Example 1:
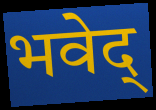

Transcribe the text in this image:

भवेद्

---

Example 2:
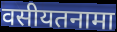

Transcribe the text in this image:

वसीयतनामा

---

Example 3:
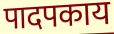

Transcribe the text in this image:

पादपकाय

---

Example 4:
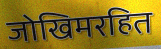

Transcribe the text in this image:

जोखिमरहित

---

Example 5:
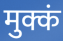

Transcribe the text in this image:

मुक्कं